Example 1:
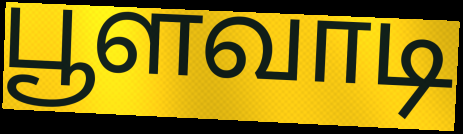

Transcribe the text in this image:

பூளவாடி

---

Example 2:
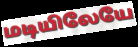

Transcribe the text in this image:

மடியிலேயே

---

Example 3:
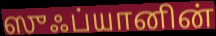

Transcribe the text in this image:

ஸுஃப்யானின்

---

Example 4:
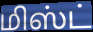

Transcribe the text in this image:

மிஸ்ட்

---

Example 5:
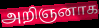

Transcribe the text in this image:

அறிஞனாக